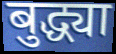
बुद्ध्या